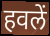
हवलें